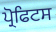
ਪ੍ਰੋਫਿਟਸ